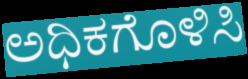
ಅಧಿಕಗೊಳಿಸಿ